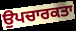
ਉਪਚਾਰਕਤਾ